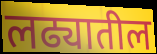
लढ्यातील